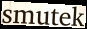
smutek